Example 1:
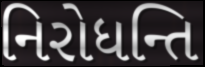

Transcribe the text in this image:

નિરોધન્તિ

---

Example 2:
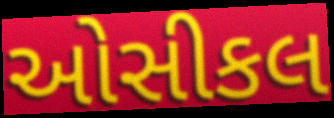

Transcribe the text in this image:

ઓસીકલ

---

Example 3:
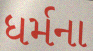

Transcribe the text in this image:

ધર્મના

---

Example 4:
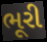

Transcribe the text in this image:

ભૂરી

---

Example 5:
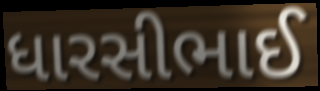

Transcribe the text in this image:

ધારસીભાઈ